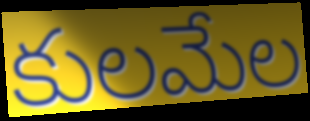
కులమేల